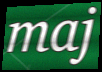
maj